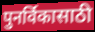
पुनर्विकासाठी